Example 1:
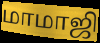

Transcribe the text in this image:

மாமாஜி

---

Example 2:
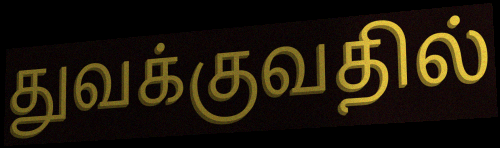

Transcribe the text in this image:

துவக்குவதில்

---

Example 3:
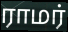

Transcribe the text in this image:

ராமர்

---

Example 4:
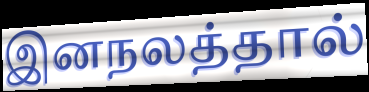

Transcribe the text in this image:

இனநலத்தால்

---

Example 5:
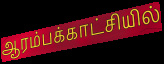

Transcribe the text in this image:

ஆரம்பக்காட்சியில்